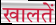
खालतें